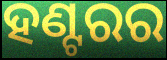
ହଣ୍ଟରର